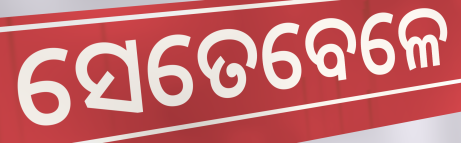
ସେତେବେଳେ